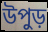
উপুড়